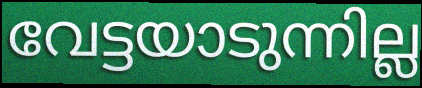
വേട്ടയാടുന്നില്ല